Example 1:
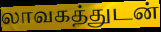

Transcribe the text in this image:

லாவகத்துடன்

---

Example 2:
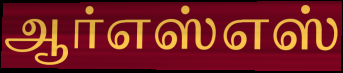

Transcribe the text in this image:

ஆர்எஸ்எஸ்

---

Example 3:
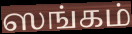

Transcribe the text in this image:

ஸங்கம்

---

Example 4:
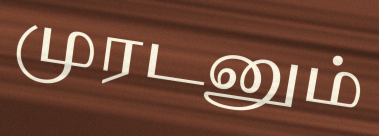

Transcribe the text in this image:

முரடனும்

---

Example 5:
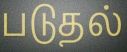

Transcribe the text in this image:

படுதல்